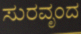
ಸುರವೃಂದ